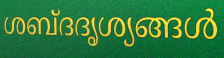
ശബ്ദദൃശ്യങ്ങൾ